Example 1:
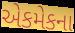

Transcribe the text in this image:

એકમેકના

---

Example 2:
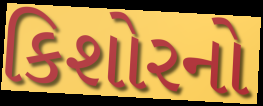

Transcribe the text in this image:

કિશોરનો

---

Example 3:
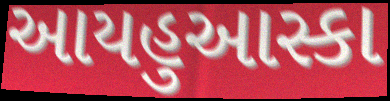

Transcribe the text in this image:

આયહુઆસ્કા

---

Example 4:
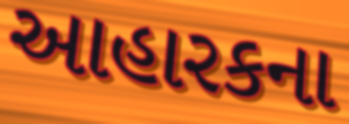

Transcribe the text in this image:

આહારકના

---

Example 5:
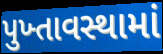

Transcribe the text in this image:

પુખ્તાવસ્થામાં